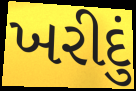
ખરીદું